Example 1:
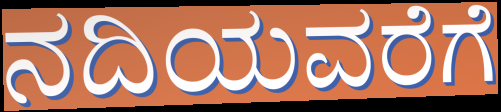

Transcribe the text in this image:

ನದಿಯವರೆಗೆ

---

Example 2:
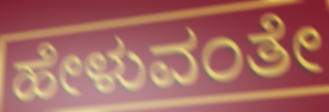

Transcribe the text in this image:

ಹೇಳುವಂತೇ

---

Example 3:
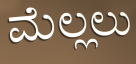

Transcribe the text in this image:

ಮೆಲ್ಲಲು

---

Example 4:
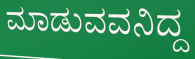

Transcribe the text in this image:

ಮಾಡುವವನಿದ್ದ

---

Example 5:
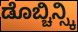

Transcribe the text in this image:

ಡೊಬ್ಚಿನ್ಸ್ಕಿ